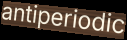
antiperiodic